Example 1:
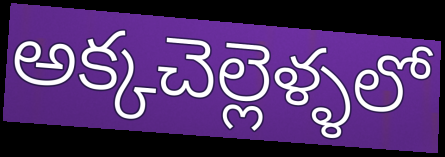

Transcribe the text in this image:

అక్కచెల్లెళ్ళలో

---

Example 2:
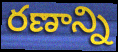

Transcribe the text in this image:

రణాన్ని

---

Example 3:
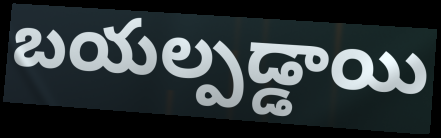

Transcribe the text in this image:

బయల్పడ్డాయి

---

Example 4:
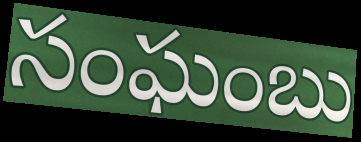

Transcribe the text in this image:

సంఘంబు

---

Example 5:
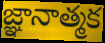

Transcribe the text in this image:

జ్ఞానాత్మక